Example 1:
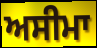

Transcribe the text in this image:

ਅਸੀਮਾ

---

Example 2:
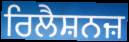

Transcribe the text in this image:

ਰਿਲੈਸ਼ਨਜ਼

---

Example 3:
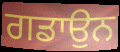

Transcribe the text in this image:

ਗਡਾਉਨ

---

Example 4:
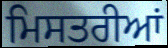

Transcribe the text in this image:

ਮਿਸਤਰੀਆਂ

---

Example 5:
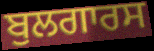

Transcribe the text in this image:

ਬੁਲਗਾਰਸ